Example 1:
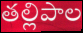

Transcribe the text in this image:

తల్లిపాల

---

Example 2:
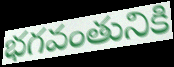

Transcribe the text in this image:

భగవంతునికి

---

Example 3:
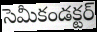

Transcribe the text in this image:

సెమీకండక్టర్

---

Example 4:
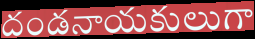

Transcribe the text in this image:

దండనాయకులుగా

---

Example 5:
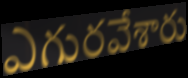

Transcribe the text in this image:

ఎగురవేశారు